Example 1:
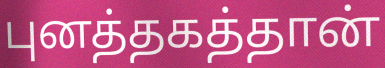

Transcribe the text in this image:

புனத்தகத்தான்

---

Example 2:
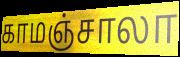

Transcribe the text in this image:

காமஞ்சாலா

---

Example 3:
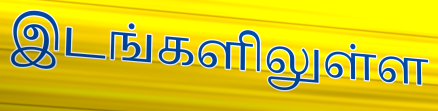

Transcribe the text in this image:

இடங்களிலுள்ள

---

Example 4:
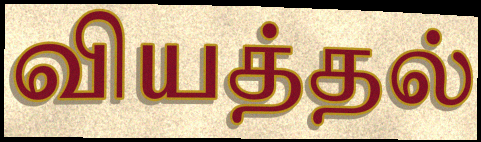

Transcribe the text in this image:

வியத்தல்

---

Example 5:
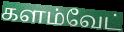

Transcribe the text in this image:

களம்வேட்